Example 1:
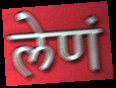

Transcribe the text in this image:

लेणं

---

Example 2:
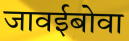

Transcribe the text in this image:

जावईबोवा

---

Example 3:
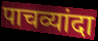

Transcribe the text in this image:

पाचव्यांदा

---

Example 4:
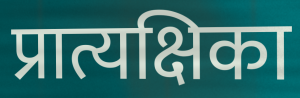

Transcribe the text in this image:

प्रात्यक्षिका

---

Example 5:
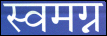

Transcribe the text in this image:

स्वमग्न